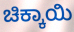
ಚಿಕ್ಕಾಯಿ